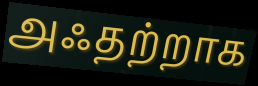
அஃதற்றாக